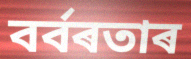
বৰ্বৰতাৰ